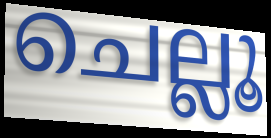
ചെല്ലൂ